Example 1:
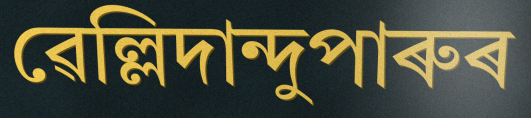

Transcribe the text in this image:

ৱেল্লিদান্দুপাৰুৰ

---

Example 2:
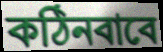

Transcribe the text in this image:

কঠিনবাবে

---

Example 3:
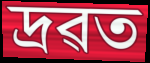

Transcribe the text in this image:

দ্ৰৱত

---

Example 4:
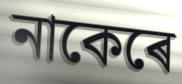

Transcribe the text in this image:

নাকেৰে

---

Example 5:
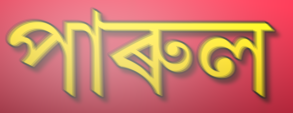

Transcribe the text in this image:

পাৰুল